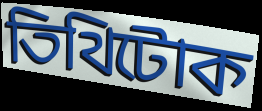
তিথিটোক